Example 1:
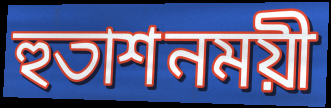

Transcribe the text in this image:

হুতাশনময়ী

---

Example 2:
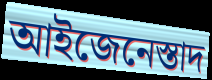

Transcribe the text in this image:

আইজেনেস্তাদ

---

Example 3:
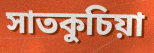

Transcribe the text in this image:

সাতকুচিয়া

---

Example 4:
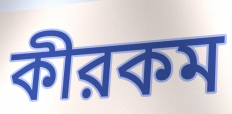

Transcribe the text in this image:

কীরকম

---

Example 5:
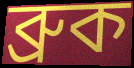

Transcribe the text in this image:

ব্রুক